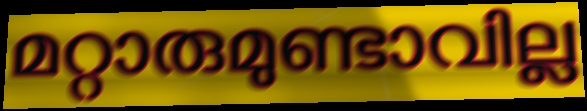
മറ്റാരുമുണ്ടാവില്ല